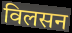
विलसन